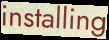
installing